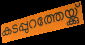
കടപ്പുറത്തേയ്ക്കു്